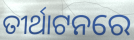
ତୀର୍ଥାଟନରେ